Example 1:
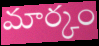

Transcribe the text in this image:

మార్కం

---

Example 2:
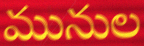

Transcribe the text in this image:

మునుల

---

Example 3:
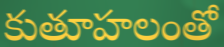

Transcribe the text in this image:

కుతూహలంతో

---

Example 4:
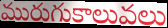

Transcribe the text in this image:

మురుగుకాలువలు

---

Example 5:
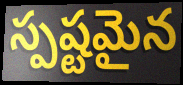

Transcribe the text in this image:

స్పష్టమైన